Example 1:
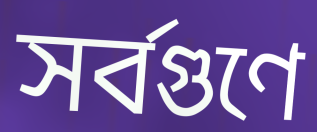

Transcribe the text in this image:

সর্বগুণে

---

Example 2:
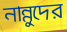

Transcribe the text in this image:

নান্নুদের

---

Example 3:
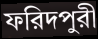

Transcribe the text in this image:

ফরিদপুরী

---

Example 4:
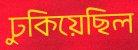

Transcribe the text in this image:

ঢুকিয়েছিল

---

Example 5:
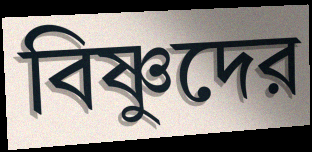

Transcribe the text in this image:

বিষ্ণুদের